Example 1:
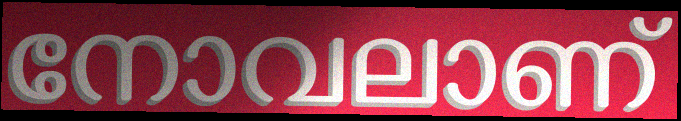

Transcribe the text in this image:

നോവലാണ്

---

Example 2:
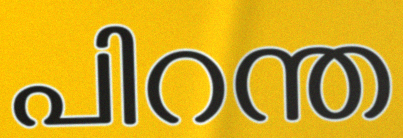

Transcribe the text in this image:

പിറന്ത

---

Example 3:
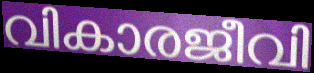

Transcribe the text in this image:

വികാരജീവി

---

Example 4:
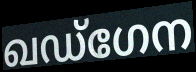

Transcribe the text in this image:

ഖഡ്ഗേന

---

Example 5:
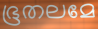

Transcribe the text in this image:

ഭൂതലമേ